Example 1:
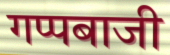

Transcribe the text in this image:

गप्पबाजी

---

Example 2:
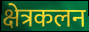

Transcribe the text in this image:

क्षेत्रकलन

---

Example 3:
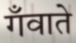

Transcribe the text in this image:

गँवाते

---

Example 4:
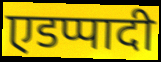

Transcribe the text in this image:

एडप्पादी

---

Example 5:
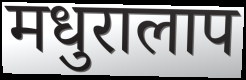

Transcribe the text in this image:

मधुरालाप